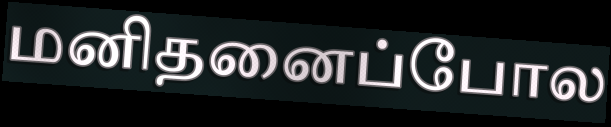
மனிதனைப்போல